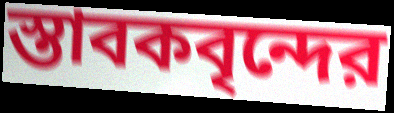
স্তাবকবৃন্দের